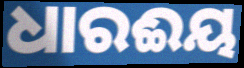
ଧାରଈୟ